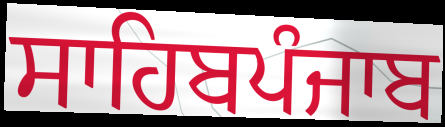
ਸਾਹਿਬਪੰਜਾਬ